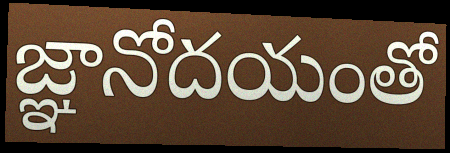
జ్ఞానోదయంతో